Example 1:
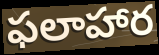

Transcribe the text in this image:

ఫలాహార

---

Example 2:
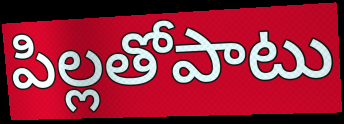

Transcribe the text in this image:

పిల్లతోపాటు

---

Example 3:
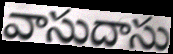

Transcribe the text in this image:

వాసుదాసు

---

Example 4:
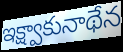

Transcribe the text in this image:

ఇక్ష్వాకునాథేన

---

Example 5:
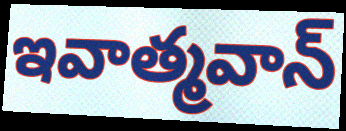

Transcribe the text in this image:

ఇవాత్మవాన్